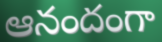
ఆనందంగా